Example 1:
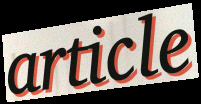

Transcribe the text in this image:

article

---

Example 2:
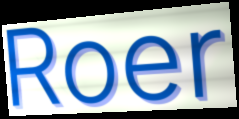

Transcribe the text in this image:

Roer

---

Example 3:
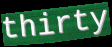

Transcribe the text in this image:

thirty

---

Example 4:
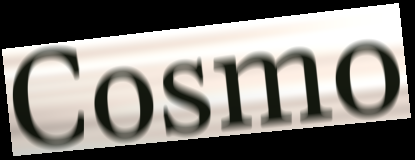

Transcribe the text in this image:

Cosmo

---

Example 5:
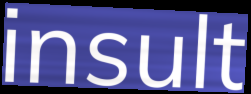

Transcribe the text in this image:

insult